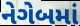
નેગેબમાં